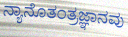
ನ್ಯಾನೊತಂತ್ರಜ್ಞಾನವು